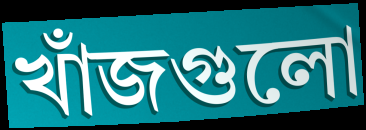
খাঁজগুলো